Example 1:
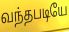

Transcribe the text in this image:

வந்தபடியே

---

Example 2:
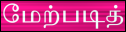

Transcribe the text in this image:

மேற்படித்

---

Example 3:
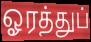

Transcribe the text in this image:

ஓரத்துப்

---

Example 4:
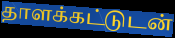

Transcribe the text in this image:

தாளக்கட்டுடன்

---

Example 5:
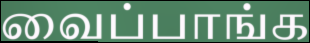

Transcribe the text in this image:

வைப்பாங்க